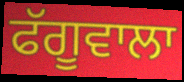
ਫੱਗੂਵਾਲਾ